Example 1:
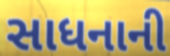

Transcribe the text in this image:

સાધનાની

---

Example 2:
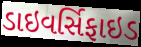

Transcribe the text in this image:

ડાઇવર્સિફાઇડ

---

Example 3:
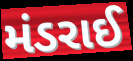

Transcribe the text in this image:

મંડરાઈ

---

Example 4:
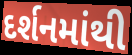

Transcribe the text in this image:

દર્શનમાંથી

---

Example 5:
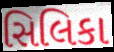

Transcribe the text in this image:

સિલિકા